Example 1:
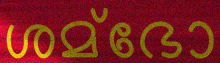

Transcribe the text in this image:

ശമ്ഭോ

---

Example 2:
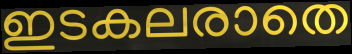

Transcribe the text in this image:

ഇടകലരാതെ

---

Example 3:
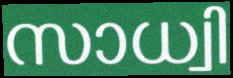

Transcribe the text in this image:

സാധ്വി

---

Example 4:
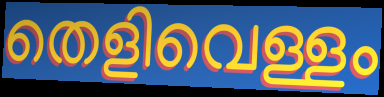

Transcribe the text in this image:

തെളിവെള്ളം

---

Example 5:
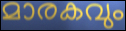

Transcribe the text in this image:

മാരകവും